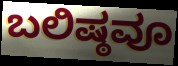
ಬಲಿಷ್ಠವೂ